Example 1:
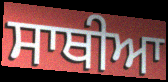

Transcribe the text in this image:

ਸਾਥੀਆ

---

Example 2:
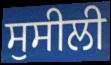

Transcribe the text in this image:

ਸੁਸੀਲੀ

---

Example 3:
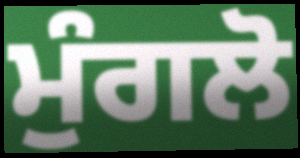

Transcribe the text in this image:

ਮੁੰਗਲੋ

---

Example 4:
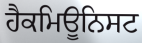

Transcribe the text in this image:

ਹੈਕਮਿਊਨਿਸਟ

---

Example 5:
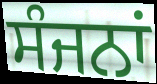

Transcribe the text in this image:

ਸੰਜਨਾਂ